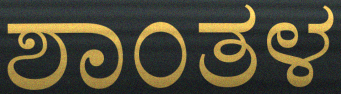
ಶಾಂತಳ